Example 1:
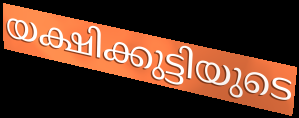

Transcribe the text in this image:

യക്ഷിക്കുട്ടിയുടെ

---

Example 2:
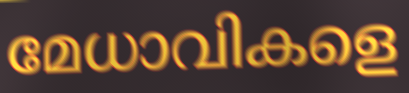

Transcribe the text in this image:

മേധാവികളെ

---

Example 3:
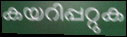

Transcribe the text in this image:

കയറിപ്പറ്റുക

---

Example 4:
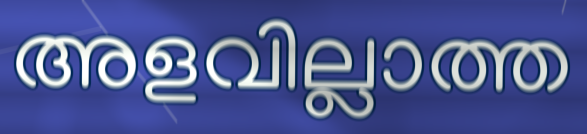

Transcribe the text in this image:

അളവില്ലാത്ത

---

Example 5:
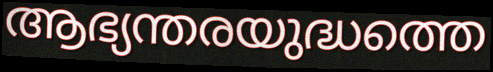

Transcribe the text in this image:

ആഭ്യന്തരയുദ്ധത്തെ